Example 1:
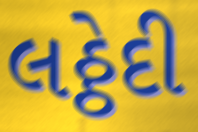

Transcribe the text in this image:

લઠ્ઠેદી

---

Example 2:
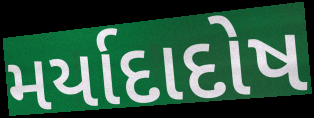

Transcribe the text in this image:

મર્યાદાદોષ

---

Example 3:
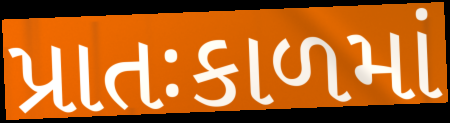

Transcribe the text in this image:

પ્રાતઃકાળમાં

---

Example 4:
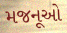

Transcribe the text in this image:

મજનૂઓ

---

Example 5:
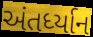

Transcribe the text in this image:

અંતર્ધ્યાન